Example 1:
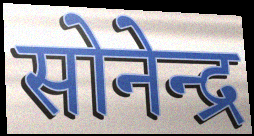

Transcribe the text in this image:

सोनेन्द्र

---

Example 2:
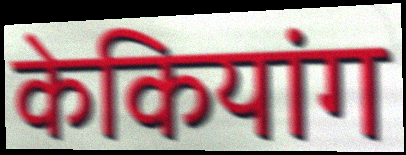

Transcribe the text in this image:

केकियांग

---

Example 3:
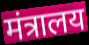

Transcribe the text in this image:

मंत्रालय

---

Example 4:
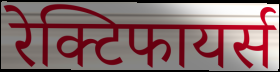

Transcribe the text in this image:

रेक्टिफायर्स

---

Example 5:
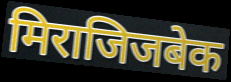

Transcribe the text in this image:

मिराजिजबेक